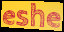
eshe